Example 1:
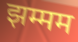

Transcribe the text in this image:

झम्मम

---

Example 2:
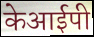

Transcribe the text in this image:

केआईपी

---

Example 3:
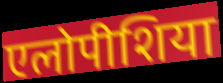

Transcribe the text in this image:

एलोपीशिया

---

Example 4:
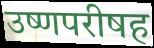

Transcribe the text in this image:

उष्णपरीषह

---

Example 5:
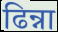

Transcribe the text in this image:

ढिन्ना